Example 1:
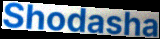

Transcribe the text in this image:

Shodasha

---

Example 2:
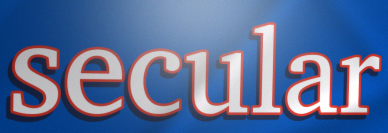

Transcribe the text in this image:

secular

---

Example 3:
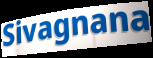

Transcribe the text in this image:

Sivagnana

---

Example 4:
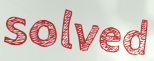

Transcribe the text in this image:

solved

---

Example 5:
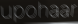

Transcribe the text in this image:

upohaar